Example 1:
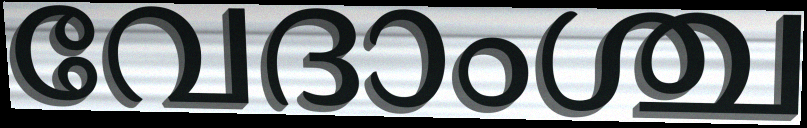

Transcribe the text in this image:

വേദാംശ്ച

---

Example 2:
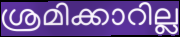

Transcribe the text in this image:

ശ്രമിക്കാറില്ല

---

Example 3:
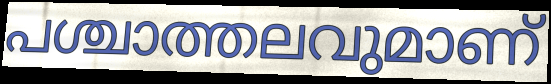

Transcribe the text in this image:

പശ്ചാത്തലവുമാണ്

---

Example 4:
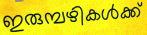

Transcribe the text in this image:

ഇരുമ്പഴികൾക്ക്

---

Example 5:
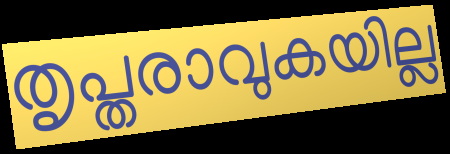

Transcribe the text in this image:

തൃപ്തരാവുകയില്ല